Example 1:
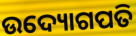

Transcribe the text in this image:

ଉଦ୍ୟୋଗପତି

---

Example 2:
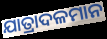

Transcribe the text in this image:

ଯାତ୍ରାଦଳମାନ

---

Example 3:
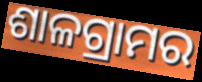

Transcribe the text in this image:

ଶାଳଗ୍ରାମର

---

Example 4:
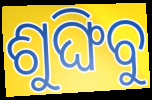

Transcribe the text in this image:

ଶୁଙ୍ଘିବୁ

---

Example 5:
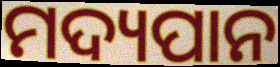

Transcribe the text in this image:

ମଦ୍ୟପାନ